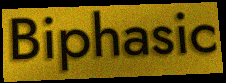
Biphasic